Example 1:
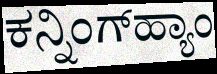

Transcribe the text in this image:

ಕನ್ನಿಂಗ್‌ಹ್ಯಾಂ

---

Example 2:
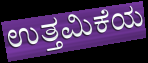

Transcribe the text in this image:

ಉತ್ತಮಿಕೆಯ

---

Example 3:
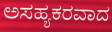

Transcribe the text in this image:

ಅಸಹ್ಯಕರವಾದ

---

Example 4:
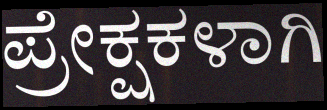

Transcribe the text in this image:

ಪ್ರೇಕ್ಷಕಳಾಗಿ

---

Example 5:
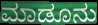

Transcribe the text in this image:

ಮಾಡೂನು